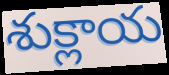
శుక్లాయ